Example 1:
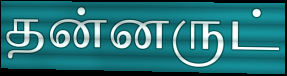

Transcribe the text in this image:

தன்னருட்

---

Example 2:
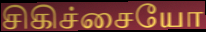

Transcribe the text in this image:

சிகிச்சையோ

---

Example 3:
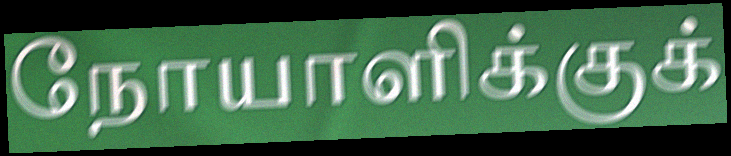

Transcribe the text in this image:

நோயாளிக்குக்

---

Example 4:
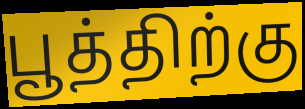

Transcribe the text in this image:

பூத்திற்கு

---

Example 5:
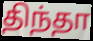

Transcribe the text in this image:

திந்தா